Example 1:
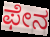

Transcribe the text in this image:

ಫೇನ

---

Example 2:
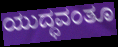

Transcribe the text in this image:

ಯುದ್ಧವಂತೂ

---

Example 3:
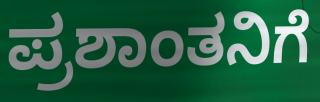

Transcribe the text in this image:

ಪ್ರಶಾಂತನಿಗೆ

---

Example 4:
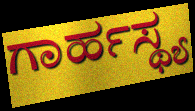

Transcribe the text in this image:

ಗಾರ್ಹಸ್ಥ್ಯ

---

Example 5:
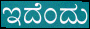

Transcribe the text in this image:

ಇದೆಂದು